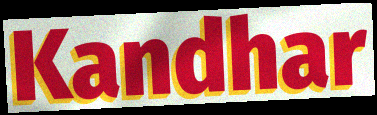
Kandhar